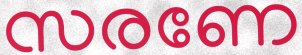
സരണേ